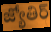
జ్యోతిర్